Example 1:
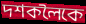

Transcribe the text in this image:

দশকলৈকে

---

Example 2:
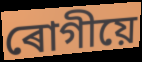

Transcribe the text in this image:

ৰোগীয়ে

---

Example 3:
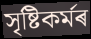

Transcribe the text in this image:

সৃষ্টিকৰ্মৰ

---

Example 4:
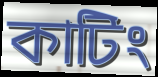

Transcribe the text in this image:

কাটিং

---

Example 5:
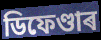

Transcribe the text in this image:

ডিফেণ্ডাৰ